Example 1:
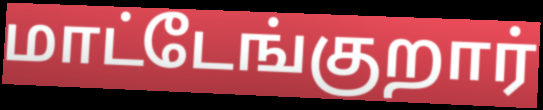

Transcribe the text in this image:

மாட்டேங்குறார்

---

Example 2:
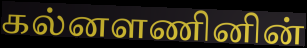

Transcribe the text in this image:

கல்னளணினின்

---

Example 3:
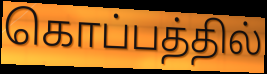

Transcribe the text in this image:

கொப்பத்தில்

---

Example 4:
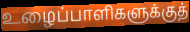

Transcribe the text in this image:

உழைப்பாளிகளுக்குத்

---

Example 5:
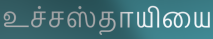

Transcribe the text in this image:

உச்சஸ்தாயியை